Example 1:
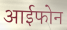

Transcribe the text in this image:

आईफोन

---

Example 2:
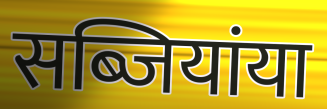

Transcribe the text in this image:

सब्जियांया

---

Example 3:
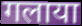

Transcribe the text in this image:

गलाया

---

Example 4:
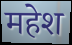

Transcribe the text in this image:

महेश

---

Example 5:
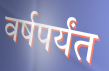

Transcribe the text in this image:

वर्षपर्यंत